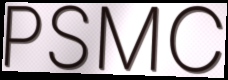
PSMC